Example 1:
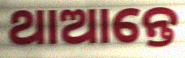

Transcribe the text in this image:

ଥାଆନ୍ତେ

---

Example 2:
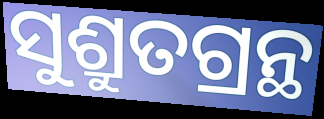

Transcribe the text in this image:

ସୁଶ୍ରୁତଗ୍ରନ୍ଥ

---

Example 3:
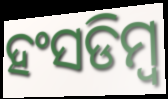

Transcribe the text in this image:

ହଂସଡିମ୍ବ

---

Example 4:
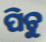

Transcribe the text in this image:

ପିଚୁ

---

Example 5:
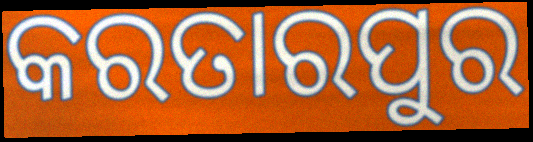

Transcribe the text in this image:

କରତାରପୁର